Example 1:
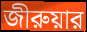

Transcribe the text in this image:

জীরুয়ার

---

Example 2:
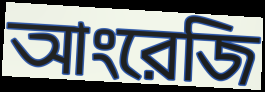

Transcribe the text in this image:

আংরেজি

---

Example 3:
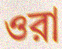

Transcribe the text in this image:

ওরা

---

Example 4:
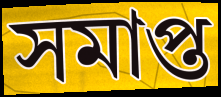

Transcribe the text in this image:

সমাপ্ত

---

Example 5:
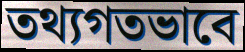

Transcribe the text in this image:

তথ্যগতভাবে